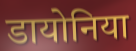
डायोनिया